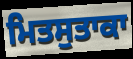
ਮਿਤਸੁਤਾਕਾ